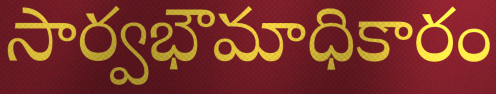
సార్వభౌమాధికారం